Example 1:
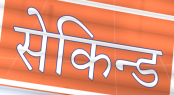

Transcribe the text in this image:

सेकिन्ड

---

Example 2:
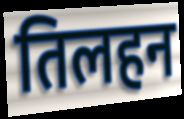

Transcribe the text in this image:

तिलहन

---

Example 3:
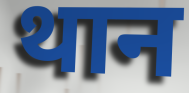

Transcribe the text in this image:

थान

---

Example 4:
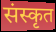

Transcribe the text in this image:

संस्‍कृत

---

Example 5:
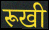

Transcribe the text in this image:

रूखी